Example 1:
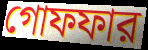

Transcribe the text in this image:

গোফফার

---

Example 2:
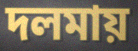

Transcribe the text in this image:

দলমায়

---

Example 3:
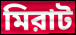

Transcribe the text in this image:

মিরাট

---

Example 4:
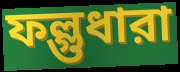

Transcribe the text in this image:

ফল্গুধারা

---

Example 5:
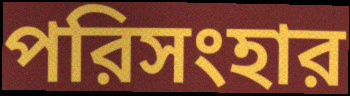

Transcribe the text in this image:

পরিসংহার